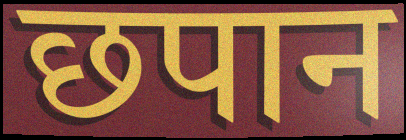
छपान